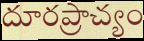
దూరప్రాచ్యం